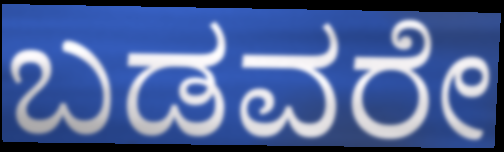
ಬಡವರೇ